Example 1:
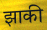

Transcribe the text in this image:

झाकी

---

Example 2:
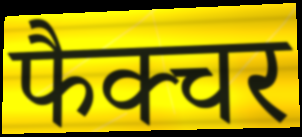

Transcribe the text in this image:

फैक्चर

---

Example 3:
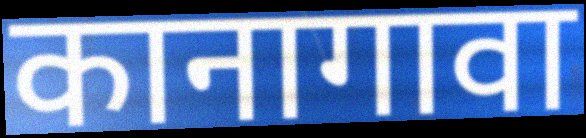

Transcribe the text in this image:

कानागावा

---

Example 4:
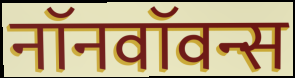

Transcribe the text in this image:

नॉनवॉवन्स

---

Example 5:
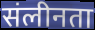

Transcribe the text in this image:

संलीनता